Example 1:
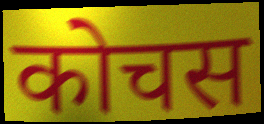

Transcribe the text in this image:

कोचस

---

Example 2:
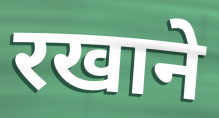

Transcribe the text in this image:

रखाने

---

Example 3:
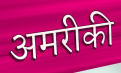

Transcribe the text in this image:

अमरीकी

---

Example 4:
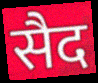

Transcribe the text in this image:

सैद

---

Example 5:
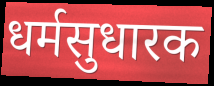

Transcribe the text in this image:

धर्मसुधारक